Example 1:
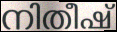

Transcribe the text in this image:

നിതീഷ്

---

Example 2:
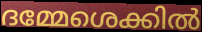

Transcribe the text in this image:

ദമ്മേശെക്കിൽ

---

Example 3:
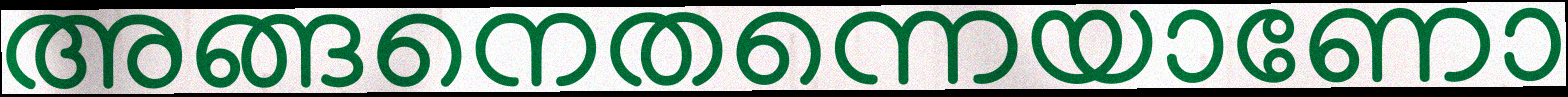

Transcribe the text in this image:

അങ്ങനെതന്നെയാണോ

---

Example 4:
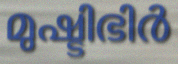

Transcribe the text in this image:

മുഷ്ടിഭിർ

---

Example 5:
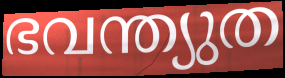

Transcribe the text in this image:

ഭവന്ത്യുത